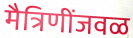
मैत्रिणींजवळ